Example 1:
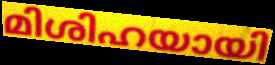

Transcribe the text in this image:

മിശിഹയായി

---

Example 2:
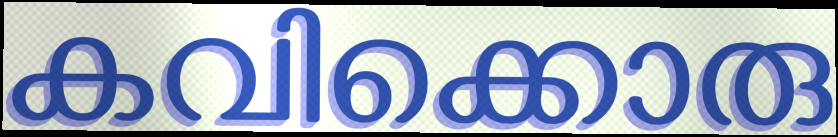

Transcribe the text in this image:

കവിക്കൊരു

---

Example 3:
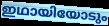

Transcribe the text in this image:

ഇഥായിയോടും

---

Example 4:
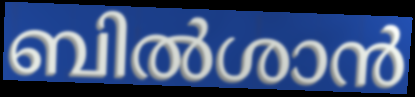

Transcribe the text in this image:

ബിൽശാൻ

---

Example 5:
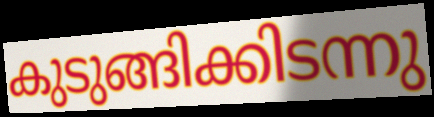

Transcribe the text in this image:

കുടുങ്ങിക്കിടന്നു